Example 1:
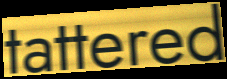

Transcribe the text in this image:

tattered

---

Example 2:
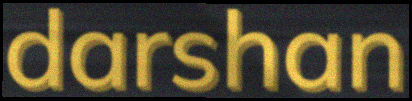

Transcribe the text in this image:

darshan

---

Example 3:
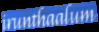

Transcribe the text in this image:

irunthaalum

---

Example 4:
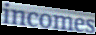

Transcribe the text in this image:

incomes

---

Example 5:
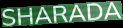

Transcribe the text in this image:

SHARADA